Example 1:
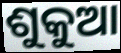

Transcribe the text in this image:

ଶୁକୁଆ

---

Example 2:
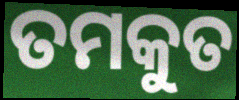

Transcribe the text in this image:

ତମକୁତ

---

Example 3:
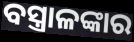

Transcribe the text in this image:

ବସ୍ତ୍ରାଳଙ୍କାର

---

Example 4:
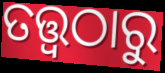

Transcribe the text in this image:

ତତ୍ତ୍ବଠାରୁ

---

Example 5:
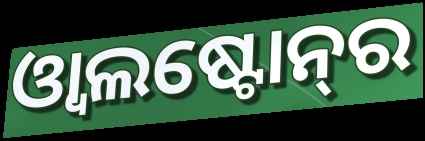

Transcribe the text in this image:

ଓ୍ୱାଲଷ୍ଟୋନ୍‌ର